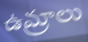
ఉమ్రాలు